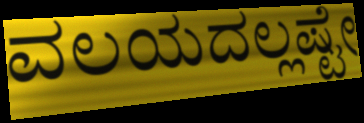
ವಲಯದಲ್ಲಷ್ಟೇ